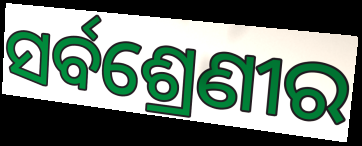
ସର୍ବଶ୍ରେଣୀର